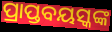
ପ୍ରାପ୍ତବୟସ୍କଙ୍କ